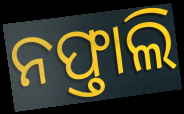
ନଫ୍ତାଲି